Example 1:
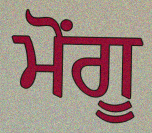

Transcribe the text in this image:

ਮੋਂਗੂ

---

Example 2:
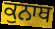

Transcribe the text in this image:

ਕੁਨਾਥ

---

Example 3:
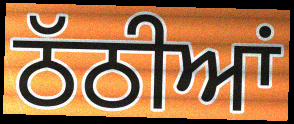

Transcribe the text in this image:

ਠੱਠੀਆਂ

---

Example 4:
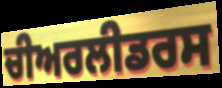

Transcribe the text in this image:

ਚੀਅਰਲੀਡਰਸ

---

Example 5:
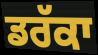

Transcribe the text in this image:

ਡਰੱਕਾ